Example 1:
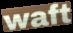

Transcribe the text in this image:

waft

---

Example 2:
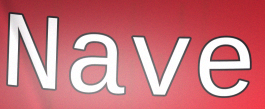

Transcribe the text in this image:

Nave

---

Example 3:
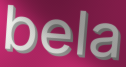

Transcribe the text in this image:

bela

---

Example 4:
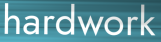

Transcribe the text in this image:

hardwork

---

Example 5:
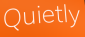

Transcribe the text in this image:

Quietly